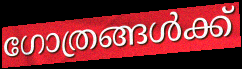
ഗോത്രങ്ങൾക്ക്